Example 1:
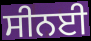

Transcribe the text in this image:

ਸੀਨਈ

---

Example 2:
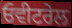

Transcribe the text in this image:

ਓਵੀਟਰੇਲ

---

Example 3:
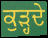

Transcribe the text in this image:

ਕੁੜ੍ਹਦੇ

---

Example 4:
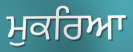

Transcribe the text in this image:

ਮੁਕਰਿਆ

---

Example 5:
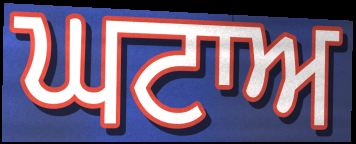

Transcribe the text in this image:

ਘਟਾਅ